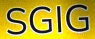
SGIG